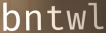
bntwl